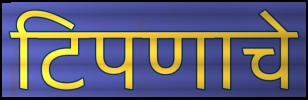
टिपणाचे